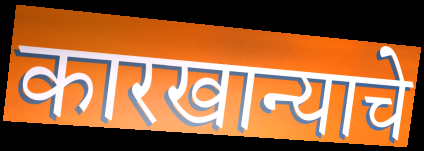
कारखान्याचे